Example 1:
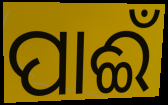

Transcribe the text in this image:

ପାଈଁ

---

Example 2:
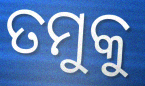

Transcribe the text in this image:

ତମୁକୁ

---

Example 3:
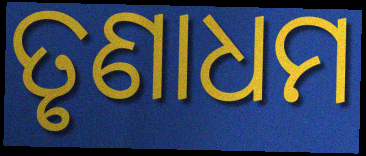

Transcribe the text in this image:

ତୃଣାଧମ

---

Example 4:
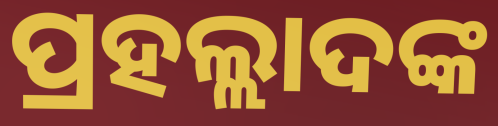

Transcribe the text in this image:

ପ୍ରହଲ୍ଲାଦଙ୍କ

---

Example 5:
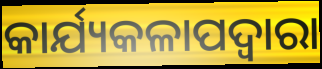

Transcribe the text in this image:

କାର୍ଯ୍ୟକଳାପଦ୍ୱାରା